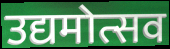
उद्यमोत्सव